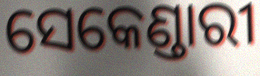
ସେକେଣ୍ଡାରୀ